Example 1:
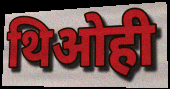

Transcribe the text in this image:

थिओही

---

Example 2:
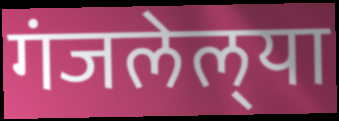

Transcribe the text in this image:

गंजलेल्या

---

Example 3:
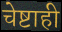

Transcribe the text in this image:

चेष्टाही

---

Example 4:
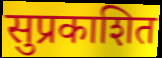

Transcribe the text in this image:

सुप्रकाशित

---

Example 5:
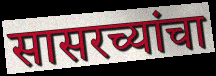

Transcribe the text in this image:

सासरच्यांचा